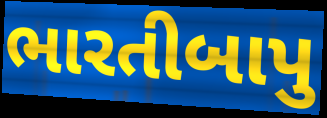
ભારતીબાપુ